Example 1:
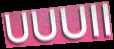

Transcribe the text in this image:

UUUII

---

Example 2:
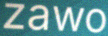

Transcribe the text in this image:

zawo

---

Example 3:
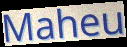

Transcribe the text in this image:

Maheu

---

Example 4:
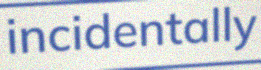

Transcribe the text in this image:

incidentally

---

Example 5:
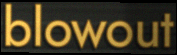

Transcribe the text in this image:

blowout